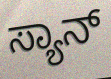
ಸ್ಯಾನ್